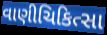
વાણીચિકિત્સા